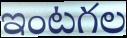
ఇంటగల